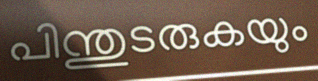
പിന്തുടരുകയും